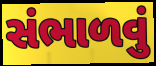
સંભાળવું